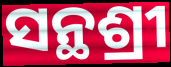
ସନ୍ଥଶ୍ରୀ